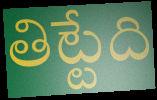
తిట్టేది